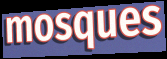
mosques